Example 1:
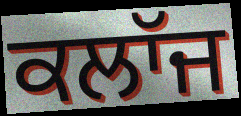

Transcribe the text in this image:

ਕਲਾੱਜ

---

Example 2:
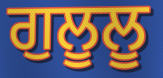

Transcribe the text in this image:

ਗੁਲੂਲੂ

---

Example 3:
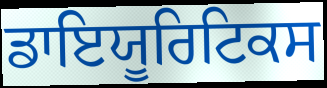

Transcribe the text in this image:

ਡਾਇਯੂਰਿਟਿਕਸ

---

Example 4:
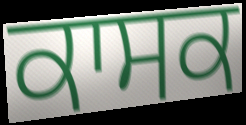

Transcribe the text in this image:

ਕਾਸਕ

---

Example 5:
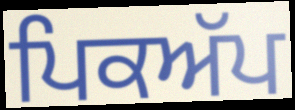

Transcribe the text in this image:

ਪਿਕਅੱਪ